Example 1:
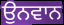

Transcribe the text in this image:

ਉਨਵਾਨ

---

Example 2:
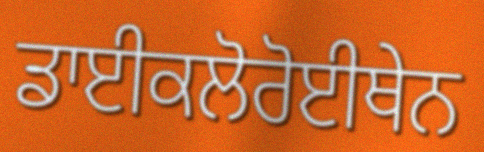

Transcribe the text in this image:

ਡਾਈਕਲੋਰੋਈਥੇਨ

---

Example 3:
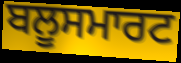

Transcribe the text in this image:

ਬਲੂਸਮਾਰਟ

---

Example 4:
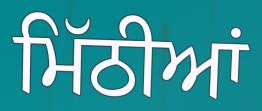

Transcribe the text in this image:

ਮਿੱਠੀਆਂ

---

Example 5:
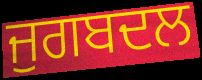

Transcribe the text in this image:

ਜੁਗਬਦਲ